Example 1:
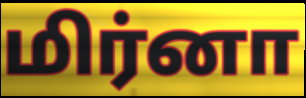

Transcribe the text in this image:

மிர்னா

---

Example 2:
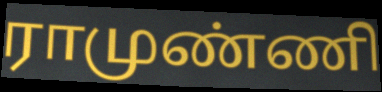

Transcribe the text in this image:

ராமுண்ணி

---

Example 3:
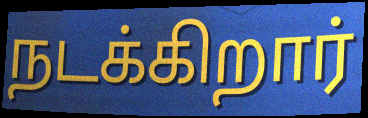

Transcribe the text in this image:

நடக்கிறார்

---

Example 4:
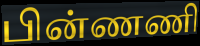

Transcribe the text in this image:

பின்ணணி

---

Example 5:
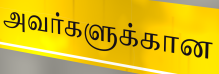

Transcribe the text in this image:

அவர்களுக்கான